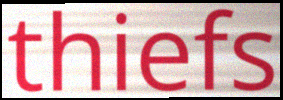
thiefs